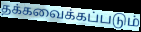
தக்கவைக்கப்படும்